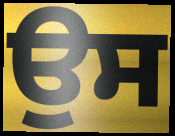
ਉਸ